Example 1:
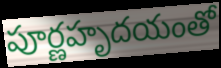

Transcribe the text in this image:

పూర్ణహృదయంతో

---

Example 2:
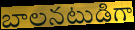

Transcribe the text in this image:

బాలనటుడిగా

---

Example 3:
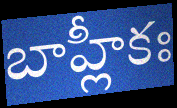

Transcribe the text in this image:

బాహ్లీకః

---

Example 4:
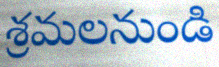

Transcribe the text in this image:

శ్రమలనుండి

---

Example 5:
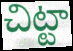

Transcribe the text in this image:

చిట్టా